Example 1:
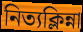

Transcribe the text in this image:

নিত্যক্লিন্না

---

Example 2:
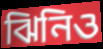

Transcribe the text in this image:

ঝিনিও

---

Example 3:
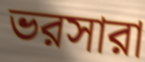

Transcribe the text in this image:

ভরসারা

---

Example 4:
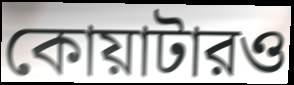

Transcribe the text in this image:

কোয়াটারও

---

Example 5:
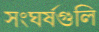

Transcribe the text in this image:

সংঘর্ষগুলি